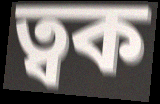
ত্বক